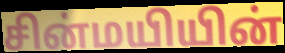
சின்மயியின்